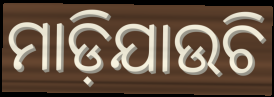
ମାଡ଼ିଯାଉଚି